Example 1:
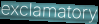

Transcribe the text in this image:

exclamatory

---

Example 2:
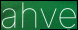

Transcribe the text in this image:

ahve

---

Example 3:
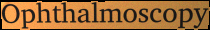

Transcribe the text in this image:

Ophthalmoscopy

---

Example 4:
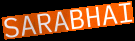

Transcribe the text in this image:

SARABHAI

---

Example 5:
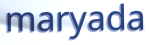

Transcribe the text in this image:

maryada